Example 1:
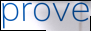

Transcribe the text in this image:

prove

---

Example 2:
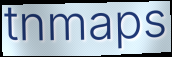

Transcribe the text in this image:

tnmaps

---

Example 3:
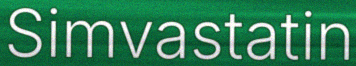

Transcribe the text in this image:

Simvastatin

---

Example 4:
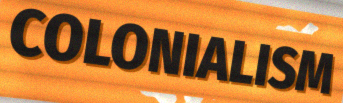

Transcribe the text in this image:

COLONIALISM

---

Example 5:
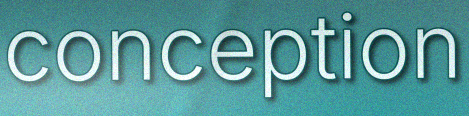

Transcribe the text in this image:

conception